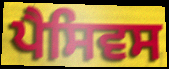
ਪੈਸਿਵਸ